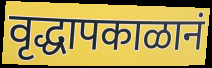
वृद्धापकाळानं